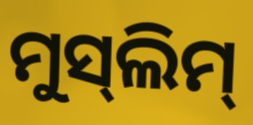
ମୁସ୍‌ଲିମ୍